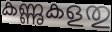
കണ്ണുകളതു